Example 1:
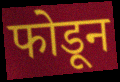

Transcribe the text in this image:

फोडून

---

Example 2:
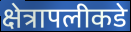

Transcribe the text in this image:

क्षेत्रापलीकडे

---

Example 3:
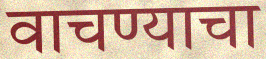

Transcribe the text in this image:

वाचण्याचा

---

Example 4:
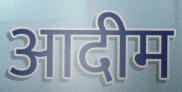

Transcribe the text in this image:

आदीम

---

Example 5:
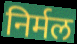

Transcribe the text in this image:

निर्मल